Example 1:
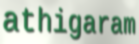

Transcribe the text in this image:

athigaram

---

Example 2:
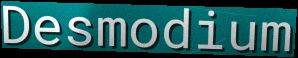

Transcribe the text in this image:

Desmodium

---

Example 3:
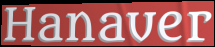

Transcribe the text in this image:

Hanauer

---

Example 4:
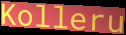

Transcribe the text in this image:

Kolleru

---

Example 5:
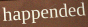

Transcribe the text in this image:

happended